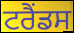
ਟਰੈਂਡਸ